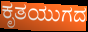
ಕೃತಯುಗದ